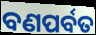
ବଣପର୍ବତ